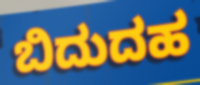
ಬಿದುದಹ